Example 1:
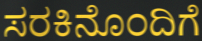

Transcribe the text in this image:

ಸರಕಿನೊಂದಿಗೆ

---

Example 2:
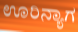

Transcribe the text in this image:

ಊರಿನ್ಯಾಗ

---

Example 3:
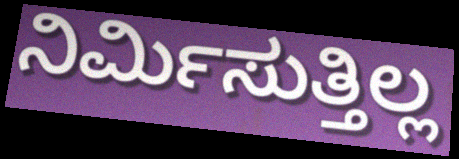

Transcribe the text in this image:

ನಿರ್ಮಿಸುತ್ತಿಲ್ಲ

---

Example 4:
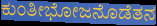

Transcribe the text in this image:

ಕುಂತೀಭೋಜನೊಡೆತನ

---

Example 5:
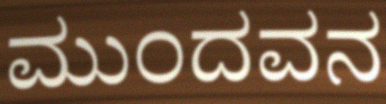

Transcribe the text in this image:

ಮುಂದವನ